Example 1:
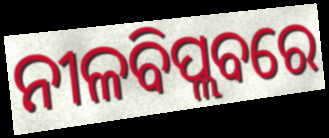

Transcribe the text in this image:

ନୀଳବିପ୍ଲବରେ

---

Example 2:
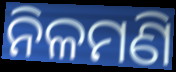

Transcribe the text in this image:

ନିଳମଣି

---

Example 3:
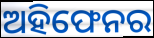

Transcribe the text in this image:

ଅହିଫେନର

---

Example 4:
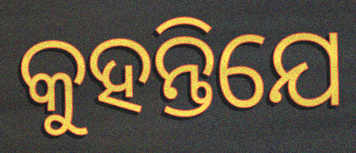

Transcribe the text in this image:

କୁହନ୍ତିଯେ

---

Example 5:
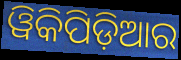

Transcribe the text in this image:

ୱିକିପିଡ଼ିଆର